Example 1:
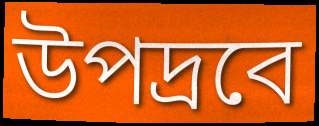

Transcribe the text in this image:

উপদ্রবে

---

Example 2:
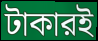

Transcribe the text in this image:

টাকারই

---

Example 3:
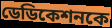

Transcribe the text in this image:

ডেডিকেশনকে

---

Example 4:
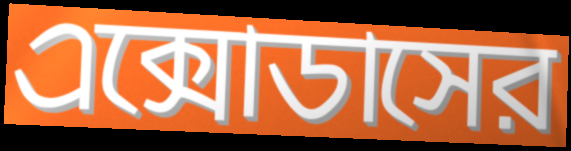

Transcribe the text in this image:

এক্সোডাসের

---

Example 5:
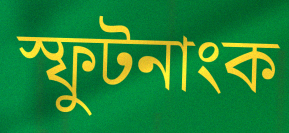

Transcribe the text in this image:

স্ফুটনাংক